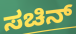
ಸಚಿನ್